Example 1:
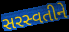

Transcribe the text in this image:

સરસ્વતીને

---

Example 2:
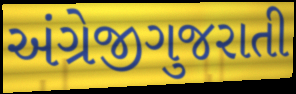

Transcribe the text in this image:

અંગ્રેજીગુજરાતી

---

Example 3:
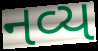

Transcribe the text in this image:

નવ્ય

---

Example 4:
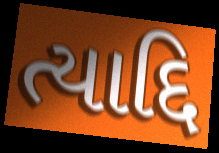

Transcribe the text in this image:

ત્યાદ્દિ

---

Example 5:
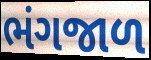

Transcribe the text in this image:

ભંગજાળ